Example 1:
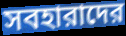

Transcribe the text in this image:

সবহারাদের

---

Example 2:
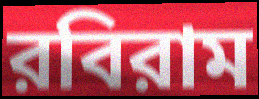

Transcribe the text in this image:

রবিরাম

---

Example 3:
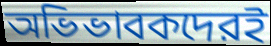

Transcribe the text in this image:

অভিভাবকদেরই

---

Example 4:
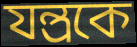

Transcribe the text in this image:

যন্ত্রকে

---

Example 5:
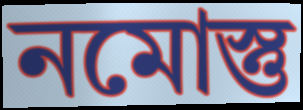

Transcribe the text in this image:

নমোস্তু